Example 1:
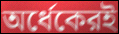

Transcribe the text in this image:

অর্ধেকেরই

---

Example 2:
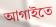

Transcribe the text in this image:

আগাইতে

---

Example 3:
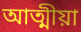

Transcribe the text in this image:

আত্মীয়া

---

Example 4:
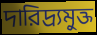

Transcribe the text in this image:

দারিদ্র্যমুক্ত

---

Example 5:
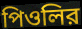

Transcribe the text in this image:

পিওলির